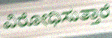
ವಿರೋಧಿಸುತ್ತಾರೆ